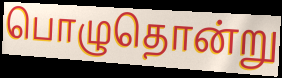
பொழுதொன்று